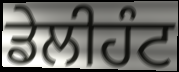
ਡੇਲੀਹੰਟ